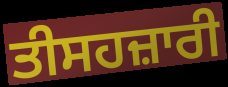
ਤੀਸਹਜ਼ਾਰੀ